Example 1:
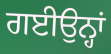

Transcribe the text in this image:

ਗਈਉਨ੍ਹਾਂ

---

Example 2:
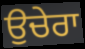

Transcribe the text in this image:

ਉਚੇਰਾ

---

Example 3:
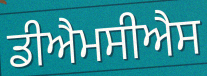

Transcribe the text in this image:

ਡੀਐਮਸੀਐਸ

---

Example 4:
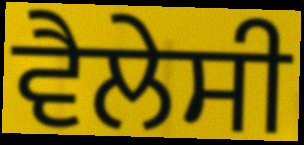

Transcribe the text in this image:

ਵੈਲੇਸੀ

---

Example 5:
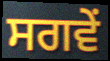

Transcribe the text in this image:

ਸਗਵੇਂ